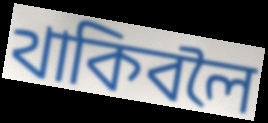
থাকিবলৈ